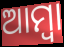
ଆମ୍ବା